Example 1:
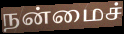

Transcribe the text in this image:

நன்மைச்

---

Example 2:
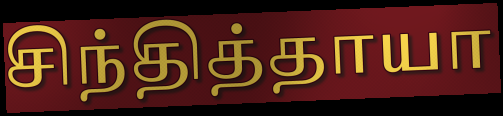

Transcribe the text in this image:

சிந்தித்தாயா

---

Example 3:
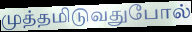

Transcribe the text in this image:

முத்தமிடுவதுபோல்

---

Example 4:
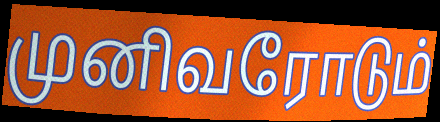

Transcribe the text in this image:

முனிவரோடும்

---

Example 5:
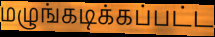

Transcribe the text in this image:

மழுங்கடிக்கப்பட்ட